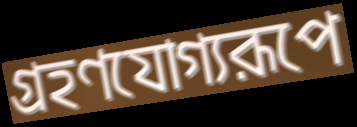
গ্রহণযোগ্যরূপে